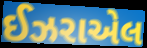
ઈઝરાએલ